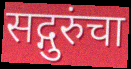
सद्गुरुंचा